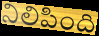
నిలిపింది